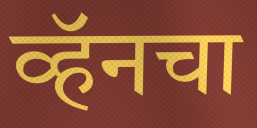
व्हॅनचा